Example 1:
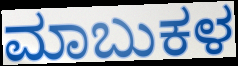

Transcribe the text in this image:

ಮಾಬುಕಳ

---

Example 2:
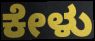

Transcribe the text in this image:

ಕೇಳು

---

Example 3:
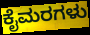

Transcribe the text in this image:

ಕೈಮರಗಳು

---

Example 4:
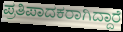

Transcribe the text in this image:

ಪ್ರತಿಪಾದಕರಾಗಿದ್ದಾರೆ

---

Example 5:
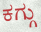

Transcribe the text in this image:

ಕಗ್ಗು